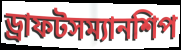
ড্রাফটসম্যানশিপ